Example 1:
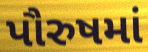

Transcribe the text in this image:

પૌરુષમાં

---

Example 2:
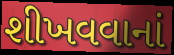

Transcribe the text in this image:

શીખવવાનાં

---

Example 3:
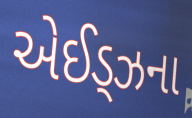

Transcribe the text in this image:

એઈડ્ઝના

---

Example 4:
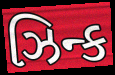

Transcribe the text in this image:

ઝિન્ક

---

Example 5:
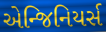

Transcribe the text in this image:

એન્જિનિયર્સ